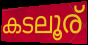
കടലൂര്